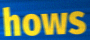
hows